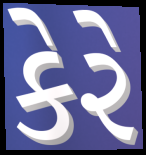
કેરે